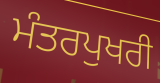
ਮੰਤਰਪੁਖਰੀ